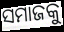
ସମାଜକୁ